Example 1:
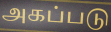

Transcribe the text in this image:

அகப்படு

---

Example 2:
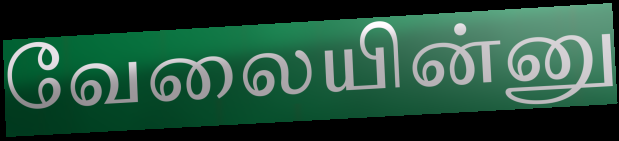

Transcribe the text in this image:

வேலையின்னு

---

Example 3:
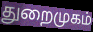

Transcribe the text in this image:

துறைமுகம்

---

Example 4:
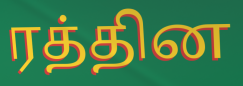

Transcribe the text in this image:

ரத்தின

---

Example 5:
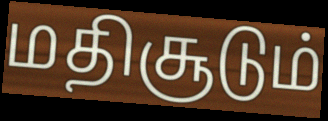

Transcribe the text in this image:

மதிசூடும்